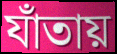
যাঁতায়